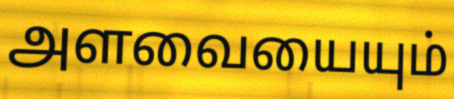
அளவையையும்